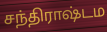
சந்திராஷ்டம